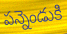
పన్నెండుకి